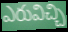
ఎరువిచ్చి